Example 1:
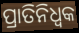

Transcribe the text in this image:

ପ୍ରାତିନିଧ୍ଵକ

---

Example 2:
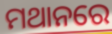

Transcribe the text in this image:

ମଥାନରେ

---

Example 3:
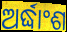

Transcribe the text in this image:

ଅର୍ଦ୍ଧାଂଶ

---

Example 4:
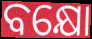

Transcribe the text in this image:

ବକ୍ଷୋ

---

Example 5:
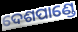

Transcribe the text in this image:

ଦେଶପାଣ୍ଡେ